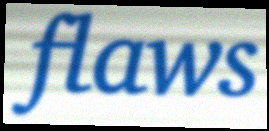
flaws